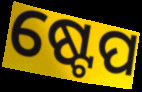
ଷ୍ଟେପ